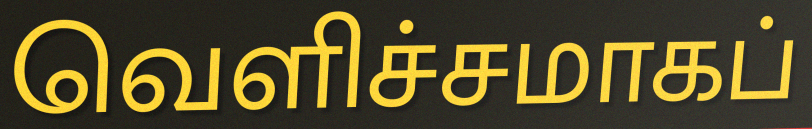
வெளிச்சமாகப்